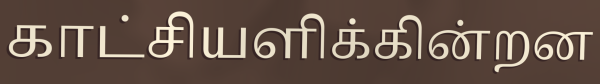
காட்சியளிக்கின்றன